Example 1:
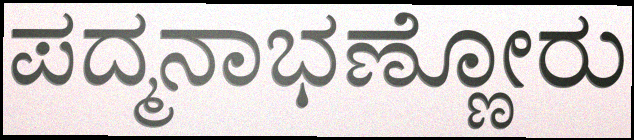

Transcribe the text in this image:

ಪದ್ಮನಾಭಣ್ಣೋರು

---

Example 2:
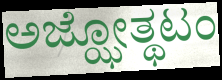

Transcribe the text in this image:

ಅಜ್ಝೋತ್ಥಟಂ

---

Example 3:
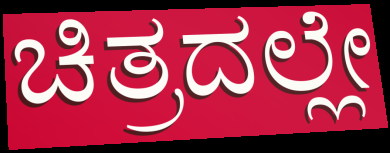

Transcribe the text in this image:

ಚಿತ್ರದಲ್ಲೇ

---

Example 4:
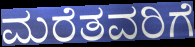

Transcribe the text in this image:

ಮರೆತವರಿಗೆ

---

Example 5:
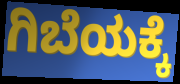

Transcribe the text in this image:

ಗಿಬೆಯಕ್ಕೆ